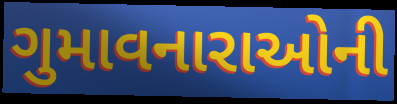
ગુમાવનારાઓની